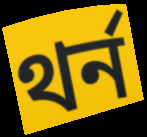
থর্ন